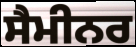
ਸੈਮੀਨਰ